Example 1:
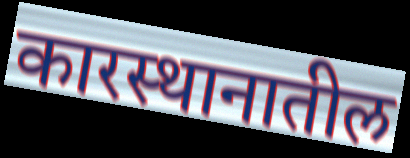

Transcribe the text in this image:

कारस्थानातील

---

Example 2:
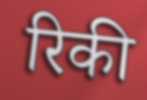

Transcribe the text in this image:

रिकी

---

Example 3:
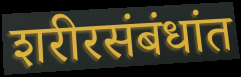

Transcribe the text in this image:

शरीरसंबंधांत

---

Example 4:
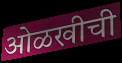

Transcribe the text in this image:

ओळखीची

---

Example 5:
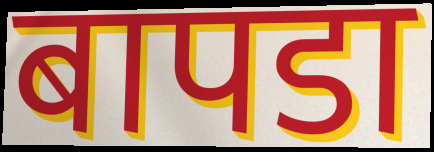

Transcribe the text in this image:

बापडा